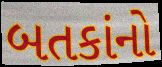
બતકાંનો